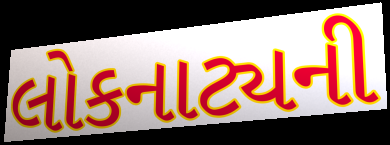
લોકનાટ્યની